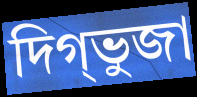
দিগ্ভুজা